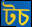
টচ